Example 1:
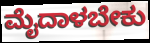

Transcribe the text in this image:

ಮೈದಾಳಬೇಕು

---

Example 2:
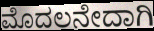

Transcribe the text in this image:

ಮೊದಲನೇದಾಗಿ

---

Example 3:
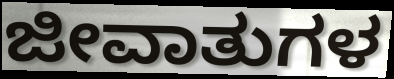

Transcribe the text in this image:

ಜೀವಾತುಗಳ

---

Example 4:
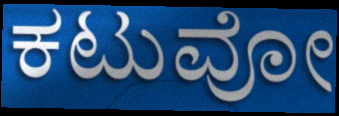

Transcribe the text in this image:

ಕಟುವೋ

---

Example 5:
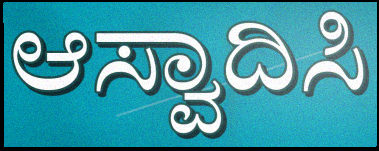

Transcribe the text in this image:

ಆಸ್ವಾದಿಸಿ